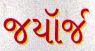
જયૉર્જ